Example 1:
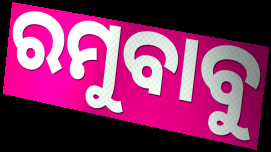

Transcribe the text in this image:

ରମୁବାବୁ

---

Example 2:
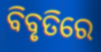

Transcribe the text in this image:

ବିବୃତିରେ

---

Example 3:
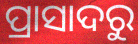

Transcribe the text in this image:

ପ୍ରାସାଦରୁ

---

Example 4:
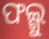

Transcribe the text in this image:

ଫଲ୍ଗୁ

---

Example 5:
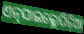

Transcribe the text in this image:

ଏନ୍‌ସାଇକ୍ଳୋପିଡ଼ିଆ